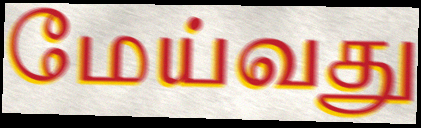
மேய்வது